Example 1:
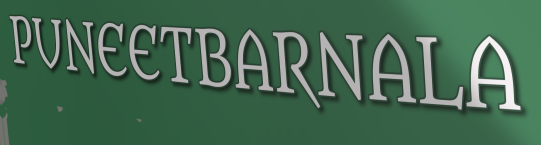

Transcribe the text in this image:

PUNEETBARNALA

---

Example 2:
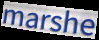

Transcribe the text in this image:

marshe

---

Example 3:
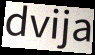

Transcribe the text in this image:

dvija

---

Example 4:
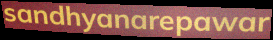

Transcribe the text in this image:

sandhyanarepawar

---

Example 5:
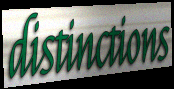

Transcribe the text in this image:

distinctions